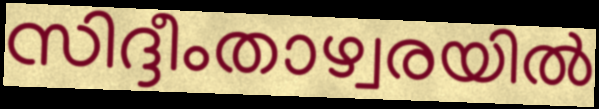
സിദ്ദീംതാഴ്വരയിൽ